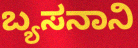
ಬ್ಯಸನಾನಿ